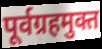
पूर्वग्रहमुक्त